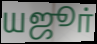
யஜூர்